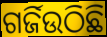
ଗର୍ଜିଉଠିଛି